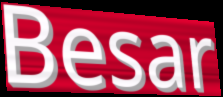
Besar